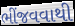
ભીંજવવાથી